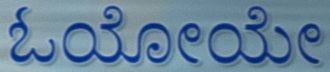
ಓಯೋಯೇ